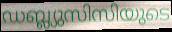
ഡബ്ല്യുസിസിയുടെ